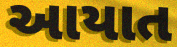
આયાત